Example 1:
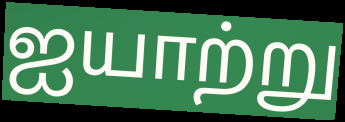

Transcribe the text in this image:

ஐயாற்று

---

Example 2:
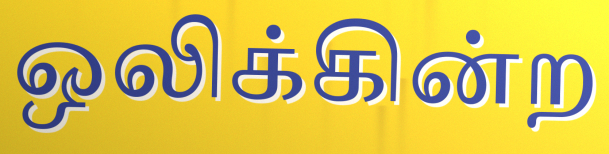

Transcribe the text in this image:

ஒலிக்கின்ற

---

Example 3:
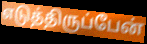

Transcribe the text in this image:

எடுத்திருப்பேன்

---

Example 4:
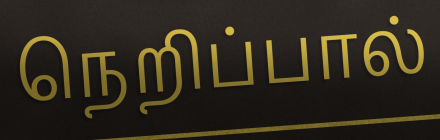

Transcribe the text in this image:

நெறிப்பால்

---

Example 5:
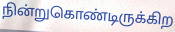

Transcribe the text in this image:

நின்றுகொண்டிருக்கிற